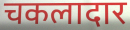
चकलादार